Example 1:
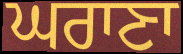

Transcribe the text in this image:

ਘਰਾਣਾ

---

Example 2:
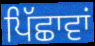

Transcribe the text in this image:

ਪਿੱਛਾਵਾਂ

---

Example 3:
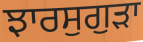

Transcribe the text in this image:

ਝਾਰਸੁਗੁੜਾ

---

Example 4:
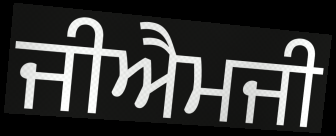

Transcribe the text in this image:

ਜੀਐਮਜੀ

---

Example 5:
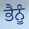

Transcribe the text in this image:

ਭੈਨੂੰ